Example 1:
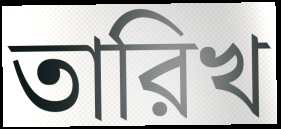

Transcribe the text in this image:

তারিখ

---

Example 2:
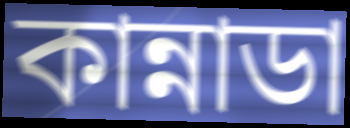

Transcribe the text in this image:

কান্নাডা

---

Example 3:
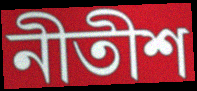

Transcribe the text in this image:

নীতীশ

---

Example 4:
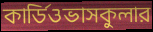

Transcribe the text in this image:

কার্ডিওভাসকুলার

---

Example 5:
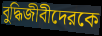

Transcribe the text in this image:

বুদ্ধিজীবীদেরকে